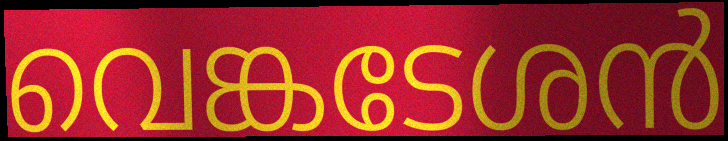
വെങ്കടേശൻ